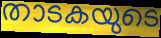
താടകയുടെ